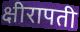
क्षीरापती